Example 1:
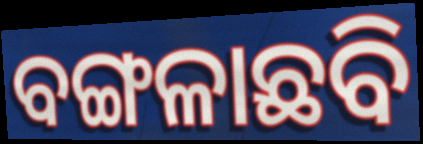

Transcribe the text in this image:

ବଙ୍ଗଳାଛବି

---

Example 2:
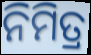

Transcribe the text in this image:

ନିମିତ୍ର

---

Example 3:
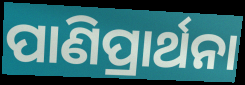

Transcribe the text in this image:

ପାଣିପ୍ରାର୍ଥନା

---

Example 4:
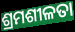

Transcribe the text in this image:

ଶ୍ରମଶୀଳତା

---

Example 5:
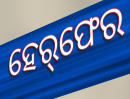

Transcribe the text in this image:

ହେର୍‌ଫେର